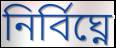
নির্বিঘ্নে